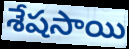
శేషసాయి